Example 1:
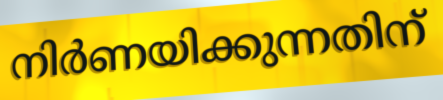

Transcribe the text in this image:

നിർണയിക്കുന്നതിന്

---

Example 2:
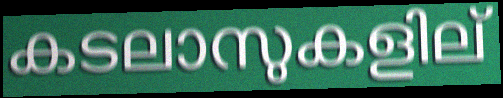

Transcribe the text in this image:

കടലാസുകളില്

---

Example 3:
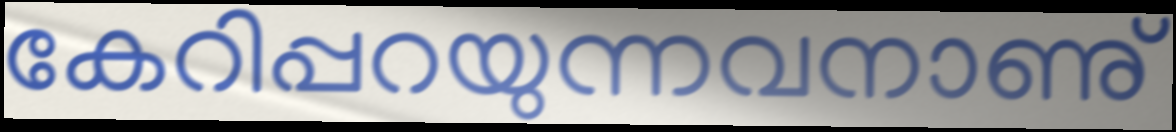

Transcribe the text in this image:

കേറിപ്പറയുന്നവനാണു്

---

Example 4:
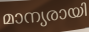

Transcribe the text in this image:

മാന്യരായി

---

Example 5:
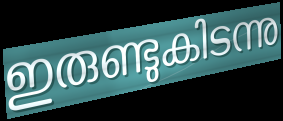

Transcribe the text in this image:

ഇരുണ്ടുകിടന്നു